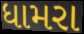
ધામરા